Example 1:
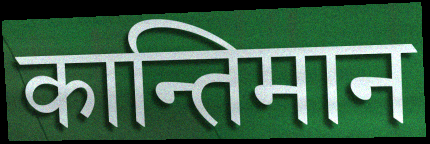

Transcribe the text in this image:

कान्तिमान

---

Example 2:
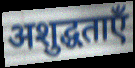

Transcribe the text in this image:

अशुद्धताएँ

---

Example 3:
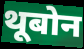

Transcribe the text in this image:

थूबोन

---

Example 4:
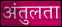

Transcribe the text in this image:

अंतुलता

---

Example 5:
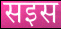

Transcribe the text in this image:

सइस